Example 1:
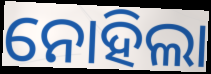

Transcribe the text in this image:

ନୋହିଲା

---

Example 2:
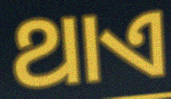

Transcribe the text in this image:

ଥାଏ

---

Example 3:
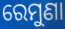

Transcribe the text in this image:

ରେମୁଣା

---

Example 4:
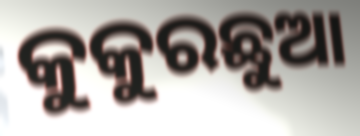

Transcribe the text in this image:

କୁକୁରଛୁଆ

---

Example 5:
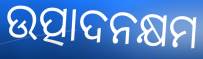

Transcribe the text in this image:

ଉତ୍ପାଦନକ୍ଷମ